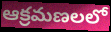
ఆక్రమణలలో